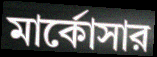
মার্কোসার